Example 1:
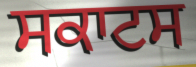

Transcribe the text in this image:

ਸਕਾਟਸ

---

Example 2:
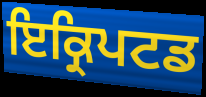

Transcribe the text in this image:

ਇਕ੍ਰਿਪਟਡ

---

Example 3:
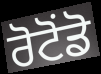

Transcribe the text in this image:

ਰੋਟੋਂਡੋ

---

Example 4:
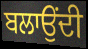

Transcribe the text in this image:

ਬਲਾਉਂਦੀ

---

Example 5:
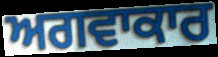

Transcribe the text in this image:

ਅਗਵਾਕਾਰ